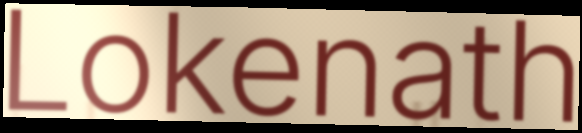
Lokenath